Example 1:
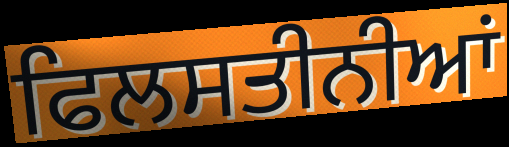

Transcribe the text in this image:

ਫਿਲਸਤੀਨੀਆਂ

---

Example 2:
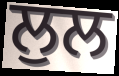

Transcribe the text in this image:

ਲੁਲ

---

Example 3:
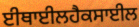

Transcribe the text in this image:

ਈਥਾਈਲਹੈਕਸਾਈਲ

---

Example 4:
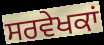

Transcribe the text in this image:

ਸਰਵੇਖਕਾਂ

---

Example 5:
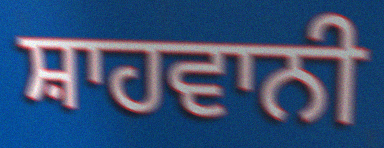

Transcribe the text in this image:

ਸ਼ਾਹਵਾਨੀ